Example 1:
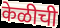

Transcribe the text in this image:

केळीची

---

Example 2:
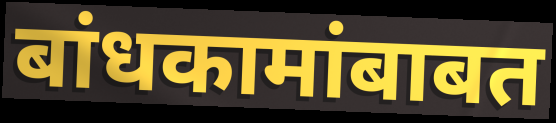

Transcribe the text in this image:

बांधकामांबाबत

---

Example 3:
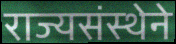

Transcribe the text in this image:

राज्यसंस्थेने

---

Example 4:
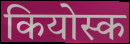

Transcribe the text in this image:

कियोस्क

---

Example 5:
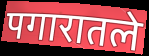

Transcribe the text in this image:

पगारातले